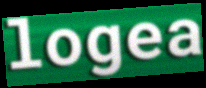
logea